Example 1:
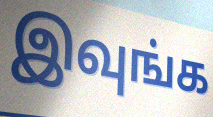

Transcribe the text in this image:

இவுங்க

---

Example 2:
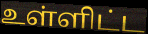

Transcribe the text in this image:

உள்ளிட்ட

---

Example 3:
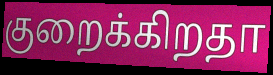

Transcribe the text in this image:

குறைக்கிறதா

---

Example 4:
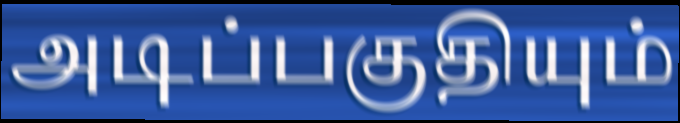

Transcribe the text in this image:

அடிப்பகுதியும்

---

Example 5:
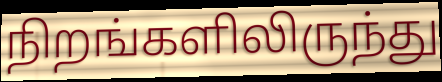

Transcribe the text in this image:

நிறங்களிலிருந்து